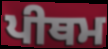
ਪੀਥਮ